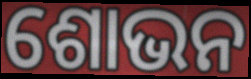
ଶୋଭନ